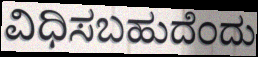
ವಿಧಿಸಬಹುದೆಂದು